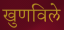
खुणविले